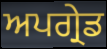
ਅਪਗ੍ਰੇਡ